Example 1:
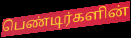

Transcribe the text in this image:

பெண்டிர்களின்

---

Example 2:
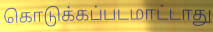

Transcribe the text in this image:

கொடுக்கப்படமாட்டாது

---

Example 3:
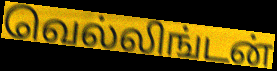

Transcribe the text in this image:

வெல்லிங்டன்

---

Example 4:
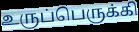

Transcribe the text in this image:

உருப்பெருக்கி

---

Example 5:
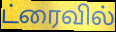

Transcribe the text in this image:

ட்ரைவில்